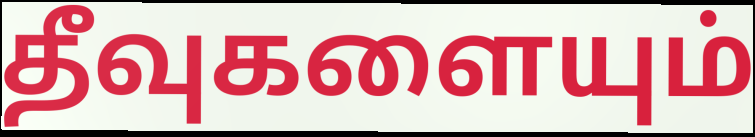
தீவுகளையும்